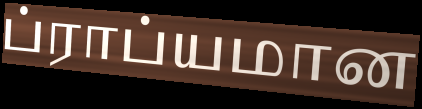
ப்ராப்யமான